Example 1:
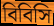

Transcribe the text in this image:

বিবিসি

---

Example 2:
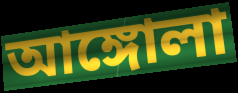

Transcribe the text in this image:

আঙ্গোলা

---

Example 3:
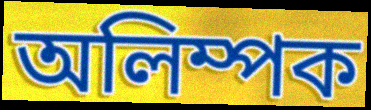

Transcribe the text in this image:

অলিম্পক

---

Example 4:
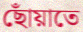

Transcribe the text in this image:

ছোঁয়াতে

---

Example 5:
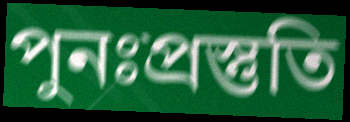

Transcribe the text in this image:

পুনঃপ্রস্তুতি